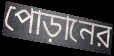
পোড়ানের